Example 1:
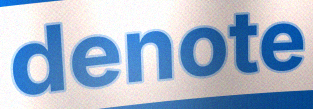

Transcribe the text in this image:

denote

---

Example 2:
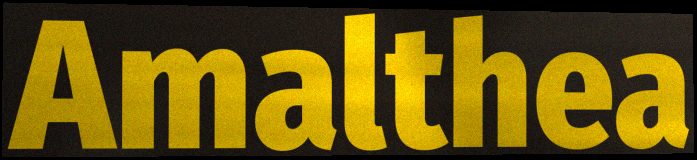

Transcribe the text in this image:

Amalthea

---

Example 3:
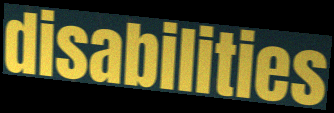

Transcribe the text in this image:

disabilities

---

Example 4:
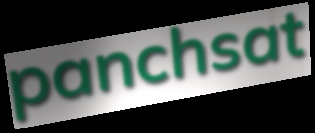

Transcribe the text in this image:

panchsat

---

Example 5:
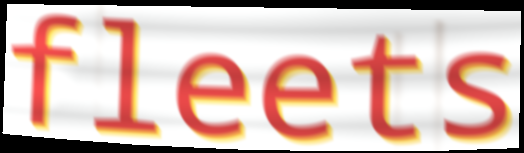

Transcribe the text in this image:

fleets